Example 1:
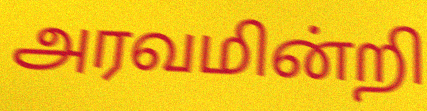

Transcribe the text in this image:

அரவமின்றி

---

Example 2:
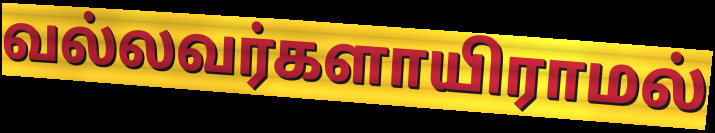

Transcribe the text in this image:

வல்லவர்களாயிராமல்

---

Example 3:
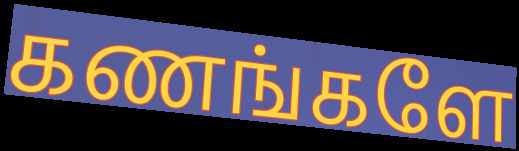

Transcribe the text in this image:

கணங்களே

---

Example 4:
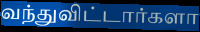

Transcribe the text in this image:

வந்துவிட்டார்களா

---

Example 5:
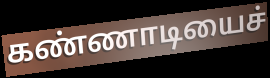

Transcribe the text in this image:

கண்ணாடியைச்